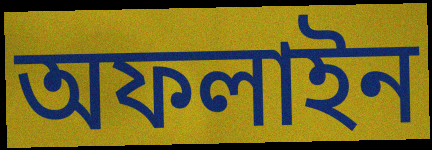
অফলাইন